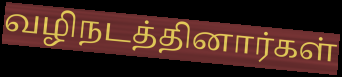
வழிநடத்தினார்கள்